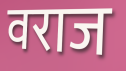
वराज